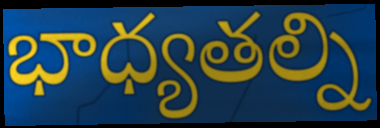
భాధ్యతల్ని